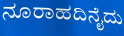
ನೂರಾಹದಿನೈದು